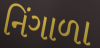
નિંગાળા